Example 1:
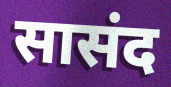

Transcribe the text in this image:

सासंद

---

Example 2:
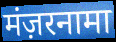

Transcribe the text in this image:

मंज़रनामा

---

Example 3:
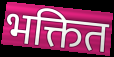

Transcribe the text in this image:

भक्तित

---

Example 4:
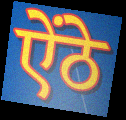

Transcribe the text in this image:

ऐंठे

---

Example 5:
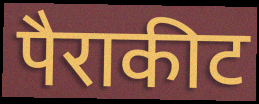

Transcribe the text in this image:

पैराकीट